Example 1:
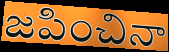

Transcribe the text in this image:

జపించినా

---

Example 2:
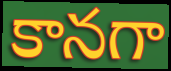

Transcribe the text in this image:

కానగా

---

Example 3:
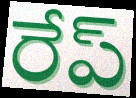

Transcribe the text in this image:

రేప్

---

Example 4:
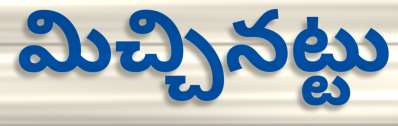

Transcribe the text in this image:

మిచ్చినట్టు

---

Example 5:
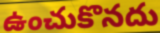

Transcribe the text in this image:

ఉంచుకొనదు